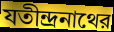
যতীন্দ্রনাথের